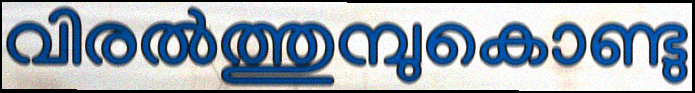
വിരൽത്തുമ്പുകൊണ്ടു